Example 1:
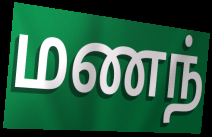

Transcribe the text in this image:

மணந்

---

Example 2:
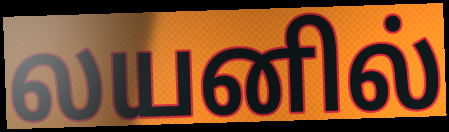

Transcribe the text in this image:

லயனில்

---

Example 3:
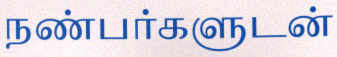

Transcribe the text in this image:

நண்பர்களுடன்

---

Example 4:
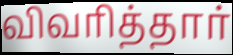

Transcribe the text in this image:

விவரித்தார்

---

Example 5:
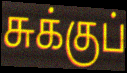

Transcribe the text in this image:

சுக்குப்